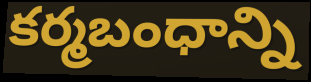
కర్మబంధాన్ని